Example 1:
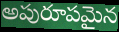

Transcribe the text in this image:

అపురూపమైన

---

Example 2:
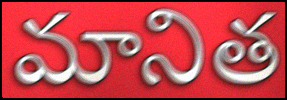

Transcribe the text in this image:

మానిత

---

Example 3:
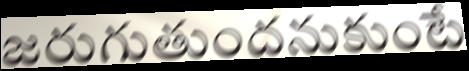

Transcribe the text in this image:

జరుగుతుందనుకుంటే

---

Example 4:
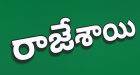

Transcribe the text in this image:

రాజేశాయి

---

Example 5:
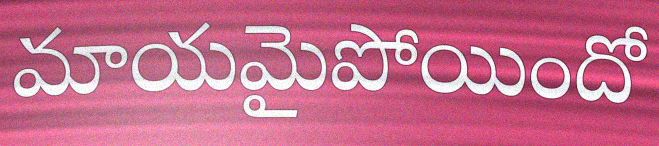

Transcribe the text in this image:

మాయమైపోయిందో